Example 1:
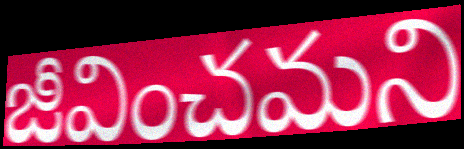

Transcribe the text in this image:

జీవించమని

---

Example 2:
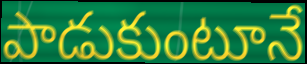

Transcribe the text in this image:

పాడుకుంటూనే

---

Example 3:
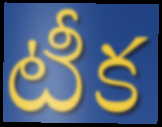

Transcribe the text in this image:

టీక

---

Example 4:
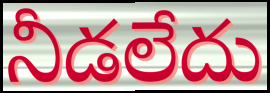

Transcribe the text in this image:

నీడలేదు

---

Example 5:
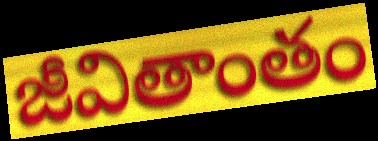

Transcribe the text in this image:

జీవితాంతం